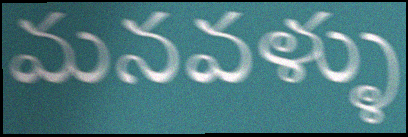
మనవళ్ళు